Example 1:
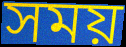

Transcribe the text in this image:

সময়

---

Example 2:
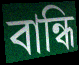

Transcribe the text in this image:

বান্ধি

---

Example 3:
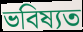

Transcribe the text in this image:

ভবিষ্যত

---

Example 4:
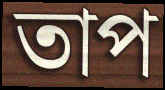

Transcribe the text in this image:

তাপ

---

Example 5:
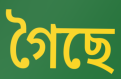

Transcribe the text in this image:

গৈছে